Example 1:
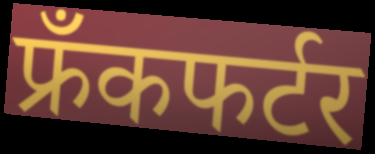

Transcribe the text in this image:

फ्रँकफर्टर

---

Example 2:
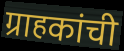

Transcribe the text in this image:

ग्राहकांची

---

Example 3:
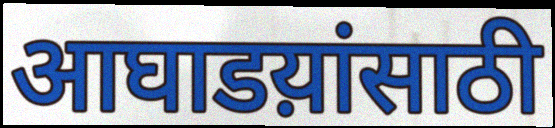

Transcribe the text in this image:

आघाडय़ांसाठी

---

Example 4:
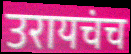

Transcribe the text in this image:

उरायचंच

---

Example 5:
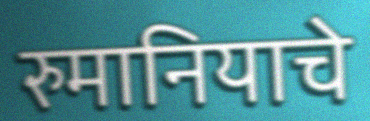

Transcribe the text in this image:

रुमानियाचे